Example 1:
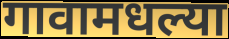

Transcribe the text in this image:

गावामधल्या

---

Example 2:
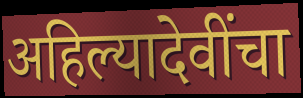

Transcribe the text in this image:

अहिल्यादेवींचा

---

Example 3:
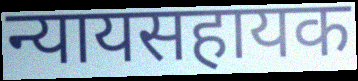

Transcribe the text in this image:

न्यायसहायक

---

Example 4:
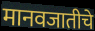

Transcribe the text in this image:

मानवजातीचे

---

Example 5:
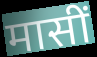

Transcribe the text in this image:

मासीं